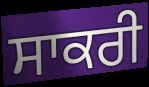
ਸਾਕਰੀ